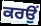
ਕਰਉਂ